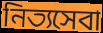
নিত্যসেবা